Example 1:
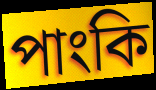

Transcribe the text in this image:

পাংকি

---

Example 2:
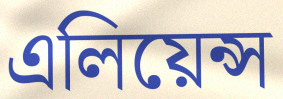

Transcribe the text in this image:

এলিয়েন্স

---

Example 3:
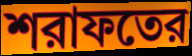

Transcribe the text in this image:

শরাফতের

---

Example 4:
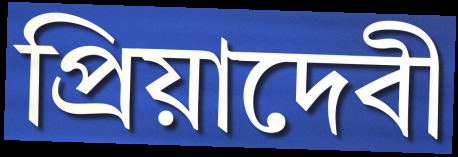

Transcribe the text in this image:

প্রিয়াদেবী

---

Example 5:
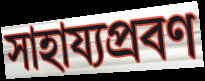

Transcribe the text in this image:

সাহায্যপ্রবণ